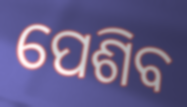
ପେଶିବ